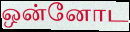
ஒன்னோட